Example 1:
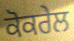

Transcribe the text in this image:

ਕੋਕਰੇਲ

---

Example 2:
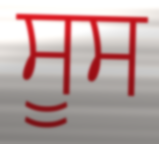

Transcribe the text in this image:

ਸੂਸ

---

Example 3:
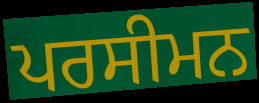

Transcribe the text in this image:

ਪਰਸੀਮਨ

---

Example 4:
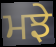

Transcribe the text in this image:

ਮਝੇ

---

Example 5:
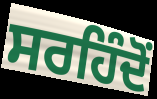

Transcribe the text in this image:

ਸਰਹਿੰਦੋਂ